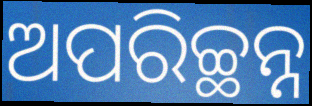
ଅପରିଚ୍ଛନ୍ନ